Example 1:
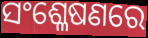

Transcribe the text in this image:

ସଂଶ୍ଳେଷଣରେ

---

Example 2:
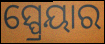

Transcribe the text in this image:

ସ୍ପ୍ରେୟାର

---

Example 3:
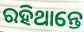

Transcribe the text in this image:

ରହିଥାନ୍ତେ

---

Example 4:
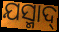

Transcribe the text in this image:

ଯସ୍ମାଦ୍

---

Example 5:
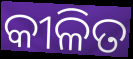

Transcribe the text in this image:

କୀଳିତ